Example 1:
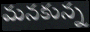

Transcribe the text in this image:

మనకున్న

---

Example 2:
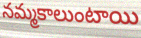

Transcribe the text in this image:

నమ్మకాలుంటాయి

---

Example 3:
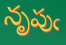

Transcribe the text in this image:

నృపుఁ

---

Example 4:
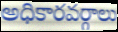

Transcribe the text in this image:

అధికారవర్గాలు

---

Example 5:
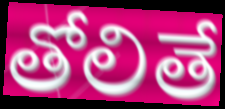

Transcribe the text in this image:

తోలితే